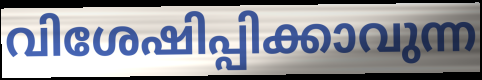
വിശേഷിപ്പിക്കാവുന്ന